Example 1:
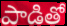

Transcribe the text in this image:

పాడితో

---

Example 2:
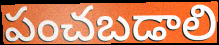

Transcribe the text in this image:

పంచబడాలి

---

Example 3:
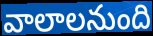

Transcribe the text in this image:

వాలాలనుంది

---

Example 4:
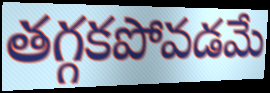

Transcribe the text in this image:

తగ్గకపోవడమే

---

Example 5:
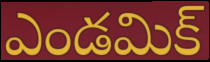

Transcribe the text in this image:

ఎండమిక్